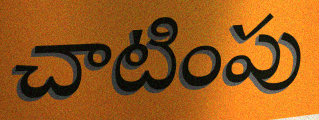
చాటింపు